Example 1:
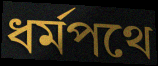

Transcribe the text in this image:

ধর্মপথে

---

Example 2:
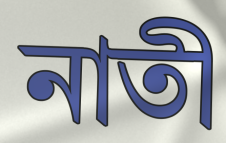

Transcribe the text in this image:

নাতী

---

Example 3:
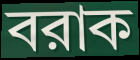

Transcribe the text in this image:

বরাক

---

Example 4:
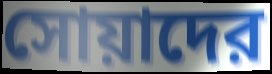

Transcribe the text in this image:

সোয়াদের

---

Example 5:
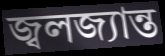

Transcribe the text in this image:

জ্বলজ্যান্ত